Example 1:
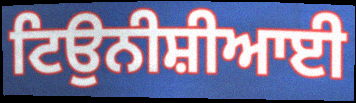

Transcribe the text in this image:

ਟਿਉਨੀਸ਼ੀਆਈ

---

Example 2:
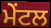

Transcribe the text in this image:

ਮੇਂਟਲ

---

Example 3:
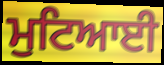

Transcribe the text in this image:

ਮੁਟਿਆਈ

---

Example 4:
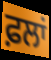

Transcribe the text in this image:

ਫ਼ਲਾਂ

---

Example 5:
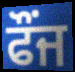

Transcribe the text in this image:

ਫੌਂਜ